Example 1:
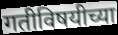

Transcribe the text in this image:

गतीविषयीच्या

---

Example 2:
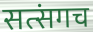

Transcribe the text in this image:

सत्संगच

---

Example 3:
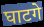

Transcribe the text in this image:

घाटगे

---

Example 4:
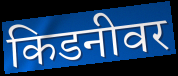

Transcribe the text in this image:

किडनीवर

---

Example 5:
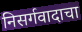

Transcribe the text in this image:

निसर्गवादाचा